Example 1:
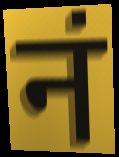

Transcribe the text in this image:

नं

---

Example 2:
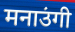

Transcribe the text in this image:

मनाउंगी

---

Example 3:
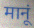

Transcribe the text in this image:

मानूं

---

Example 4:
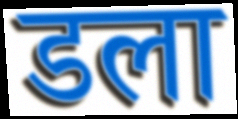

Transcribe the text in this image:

डला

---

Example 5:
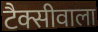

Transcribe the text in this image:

टैक्सीवाला